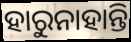
ହାରୁନାହାନ୍ତି